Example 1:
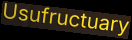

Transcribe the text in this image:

Usufructuary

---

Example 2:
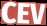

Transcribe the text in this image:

CEV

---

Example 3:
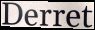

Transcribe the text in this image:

Derret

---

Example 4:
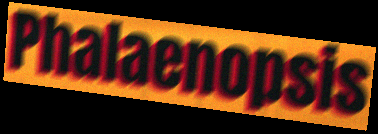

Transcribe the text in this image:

Phalaenopsis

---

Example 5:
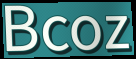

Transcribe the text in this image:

Bcoz